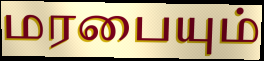
மரபையும்